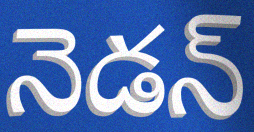
నెడన్